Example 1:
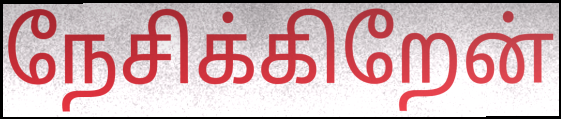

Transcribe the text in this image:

நேசிக்கிறேன்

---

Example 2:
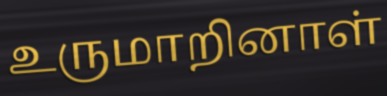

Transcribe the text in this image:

உருமாறினாள்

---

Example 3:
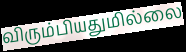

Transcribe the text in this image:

விரும்பியதுமில்லை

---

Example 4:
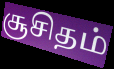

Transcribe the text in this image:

சூசிதம்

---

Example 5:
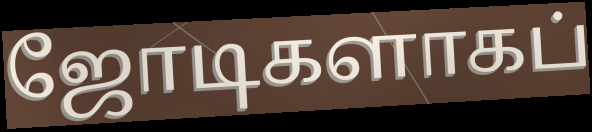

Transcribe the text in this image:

ஜோடிகளாகப்